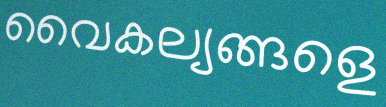
വൈകല്യങ്ങളെ